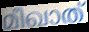
മീഖാത്